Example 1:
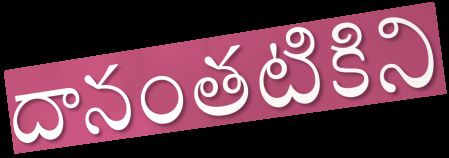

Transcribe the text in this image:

దానంతటికిని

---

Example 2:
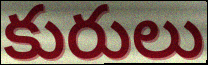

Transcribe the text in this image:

కురులు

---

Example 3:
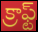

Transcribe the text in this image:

క్రాఫ్ట్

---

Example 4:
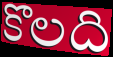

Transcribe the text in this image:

కొలది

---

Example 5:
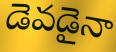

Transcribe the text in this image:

డెవడైనా